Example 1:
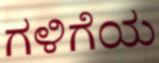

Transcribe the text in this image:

ಗಳಿಗೆಯ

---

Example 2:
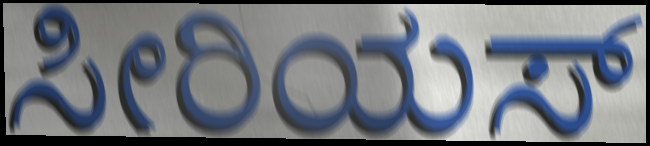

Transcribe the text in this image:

ಸೀರಿಯಸ್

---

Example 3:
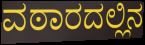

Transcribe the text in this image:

ವಠಾರದಲ್ಲಿನ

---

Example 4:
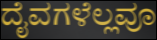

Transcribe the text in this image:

ದೈವಗಳೆಲ್ಲವೂ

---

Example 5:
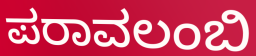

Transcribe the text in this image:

ಪರಾವಲಂಬಿ